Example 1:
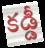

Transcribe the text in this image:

కడ్డీ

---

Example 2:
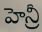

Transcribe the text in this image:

హెన్రీ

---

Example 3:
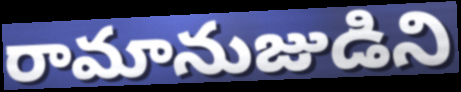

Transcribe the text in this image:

రామానుజుడిని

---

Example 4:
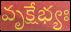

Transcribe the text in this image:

వృక్షేభ్యః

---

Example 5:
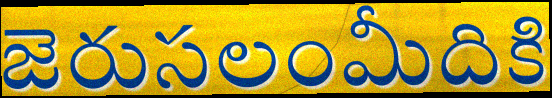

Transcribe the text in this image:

జెరుసలంమీదికి